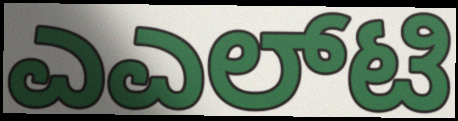
ಎಎಲ್‌ಟಿ